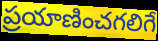
ప్రయాణించగలిగే